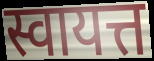
स्वायत्त